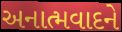
અનાત્મવાદને